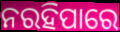
ନରହିପାରେ